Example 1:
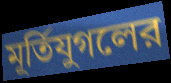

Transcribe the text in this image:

মূর্তিযুগলের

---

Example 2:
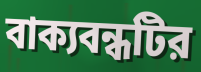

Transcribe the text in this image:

বাক্যবন্ধটির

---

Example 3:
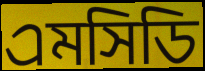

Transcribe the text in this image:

এমসিডি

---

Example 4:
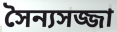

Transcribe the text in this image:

সৈন্যসজ্জা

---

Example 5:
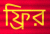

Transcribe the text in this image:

ফ্রির